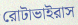
রোটাভাইরাস